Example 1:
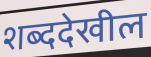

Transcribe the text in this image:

शब्ददेखील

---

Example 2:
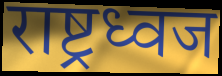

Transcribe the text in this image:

राष्ट्रध्वज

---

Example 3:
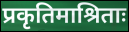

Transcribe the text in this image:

प्रकृतिमाश्रिताः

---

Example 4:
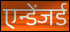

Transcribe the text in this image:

एन्डेंजर्ड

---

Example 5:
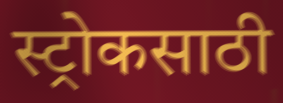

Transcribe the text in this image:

स्ट्रोकसाठी